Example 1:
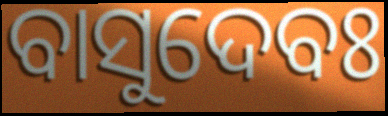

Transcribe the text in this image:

ବାସୁଦେବଃ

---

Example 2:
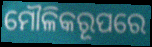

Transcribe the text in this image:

ମୌଳିକରୂପରେ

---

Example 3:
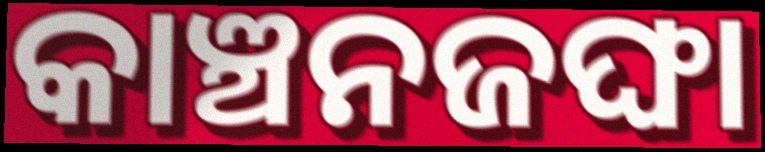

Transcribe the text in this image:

କାଞ୍ଚନଜଙ୍ଘା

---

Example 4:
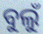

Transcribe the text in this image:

ବୁଲୁଁ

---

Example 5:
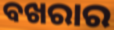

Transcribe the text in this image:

ବଖରାର